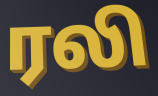
ரலி